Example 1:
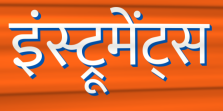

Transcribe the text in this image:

इंस्‍ट्रूमेंट्स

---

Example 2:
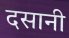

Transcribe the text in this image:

दसानी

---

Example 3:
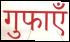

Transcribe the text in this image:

गुफाएँ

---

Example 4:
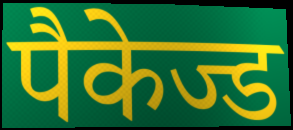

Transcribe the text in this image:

पैकेज्ड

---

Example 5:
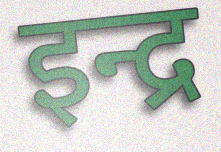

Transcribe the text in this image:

इन्द्र